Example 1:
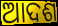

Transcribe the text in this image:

ଆଦଶ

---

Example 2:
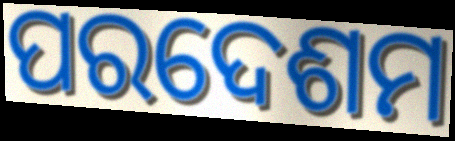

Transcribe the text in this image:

ପରଦେଶମ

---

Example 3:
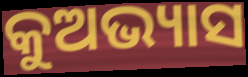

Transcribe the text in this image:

କୁଅଭ୍ୟାସ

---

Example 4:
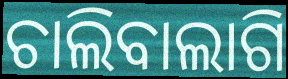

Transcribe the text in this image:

ଚାଲିବାଲାଗି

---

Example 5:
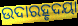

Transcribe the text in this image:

ଉଦାରହୃଦୟା